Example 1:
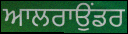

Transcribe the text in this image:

ਆਲਰਾਉਂਡਰ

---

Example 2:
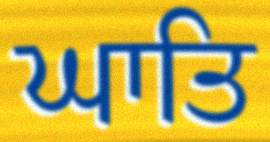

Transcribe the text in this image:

ਘਾਤਿ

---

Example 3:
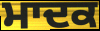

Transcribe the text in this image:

ਮਾਦਕ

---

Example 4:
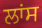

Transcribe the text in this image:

ਲਾਂਸ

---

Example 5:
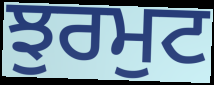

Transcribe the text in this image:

ਝੁਰਮੁਟ